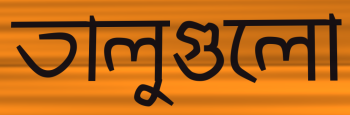
তালুগুলো